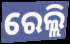
ରେଲ୍ଲି